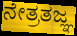
ನೇತ್ರತಜ್ಞ